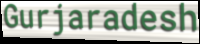
Gurjaradesh